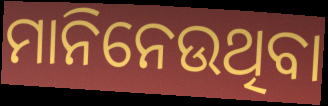
ମାନିନେଉଥିବା